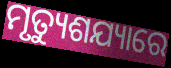
ମୃତ୍ୟୁଶଯ୍ୟାରେ